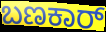
ಬಣಕಾರ್